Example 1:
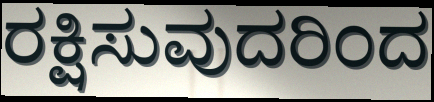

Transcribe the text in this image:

ರಕ್ಷಿಸುವುದರಿಂದ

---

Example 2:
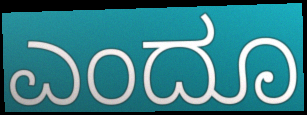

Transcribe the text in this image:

ಎಂದೂ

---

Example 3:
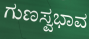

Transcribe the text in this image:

ಗುಣಸ್ವಭಾವ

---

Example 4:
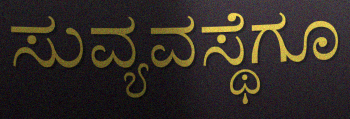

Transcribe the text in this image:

ಸುವ್ಯವಸ್ಥೆಗೂ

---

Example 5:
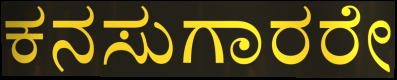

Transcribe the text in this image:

ಕನಸುಗಾರರೇ